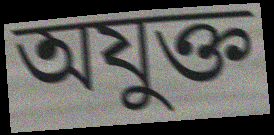
অযুক্ত